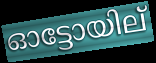
ഓട്ടോയില്